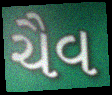
ચૈવ